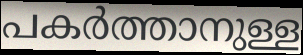
പകർത്താനുള്ള